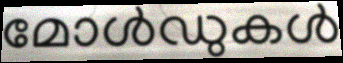
മോൾഡുകൾ